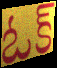
ఓక్